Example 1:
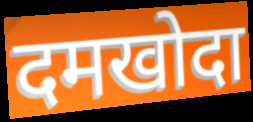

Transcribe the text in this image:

दमखोदा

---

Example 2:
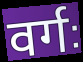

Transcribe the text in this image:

वर्गः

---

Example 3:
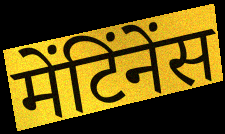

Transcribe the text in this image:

मेंटिंनेंस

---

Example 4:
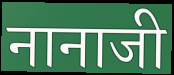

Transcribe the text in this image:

नानाजी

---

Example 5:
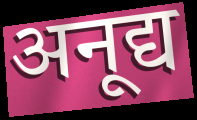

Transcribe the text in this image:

अनूद्य